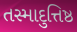
તસ્માદુત્તિષ્ઠ